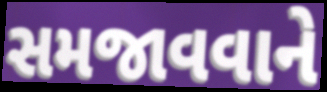
સમજાવવાને